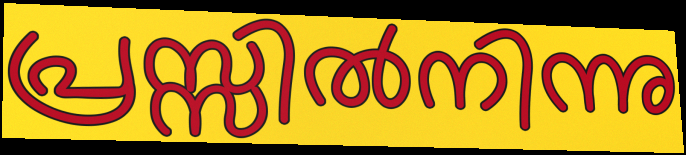
പ്രസ്സിൽനിന്നു